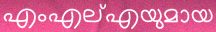
എംഎല്എയുമായ